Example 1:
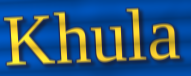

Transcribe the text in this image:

Khula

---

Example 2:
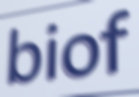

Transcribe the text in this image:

biof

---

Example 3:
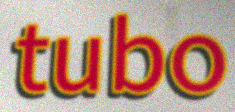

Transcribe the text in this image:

tubo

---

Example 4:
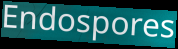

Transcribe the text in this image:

Endospores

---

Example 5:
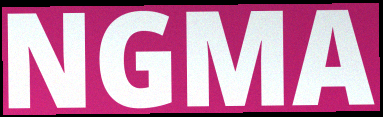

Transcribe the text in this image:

NGMA